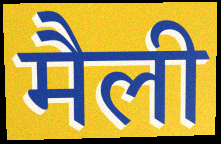
मैली